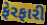
ફેરફારી